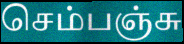
செம்பஞ்சு